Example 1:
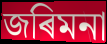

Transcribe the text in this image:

জৰিমনা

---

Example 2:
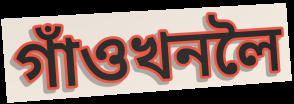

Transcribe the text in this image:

গাঁওখনলৈ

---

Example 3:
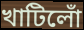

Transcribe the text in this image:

খাটিলোঁ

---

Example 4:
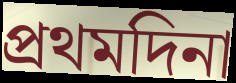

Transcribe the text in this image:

প্ৰথমদিনা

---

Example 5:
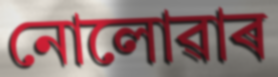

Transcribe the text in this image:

নোলোৱাৰ